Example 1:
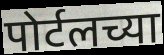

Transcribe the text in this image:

पोर्टलच्या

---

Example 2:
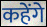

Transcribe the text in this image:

कहेंगे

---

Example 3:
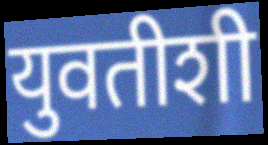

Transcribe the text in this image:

युवतीशी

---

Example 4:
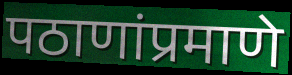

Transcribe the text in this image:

पठाणांप्रमाणे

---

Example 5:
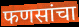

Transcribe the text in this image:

फणसांचा